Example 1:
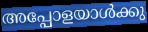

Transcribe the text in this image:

അപ്പോളയാൾക്കു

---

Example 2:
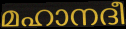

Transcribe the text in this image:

മഹാനദീ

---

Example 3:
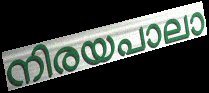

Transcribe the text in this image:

നിരയപാലാ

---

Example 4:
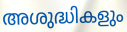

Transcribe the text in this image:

അശുദ്ധികളും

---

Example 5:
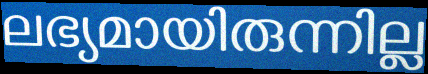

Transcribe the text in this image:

ലഭ്യമായിരുന്നില്ല